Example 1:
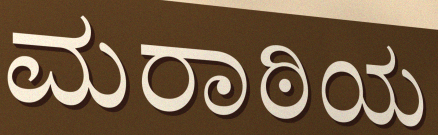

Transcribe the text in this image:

ಮರಾಠಿಯ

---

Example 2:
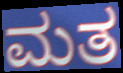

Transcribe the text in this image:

ಮತ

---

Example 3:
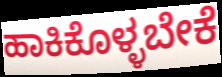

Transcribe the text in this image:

ಹಾಕಿಕೊಳ್ಳಬೇಕೆ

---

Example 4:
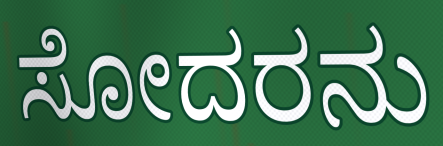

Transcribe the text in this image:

ಸೋದರನು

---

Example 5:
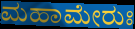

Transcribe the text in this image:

ಮಹಾಮೇರುಃ